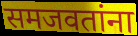
समजवतांना